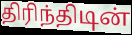
திரிந்திடின்